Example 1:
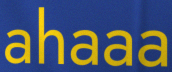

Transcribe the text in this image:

ahaaa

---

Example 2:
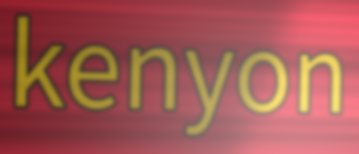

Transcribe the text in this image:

kenyon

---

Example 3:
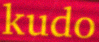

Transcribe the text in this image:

kudo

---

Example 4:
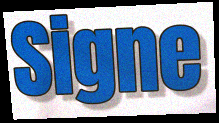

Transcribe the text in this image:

Signe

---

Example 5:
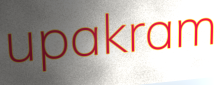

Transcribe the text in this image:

upakram